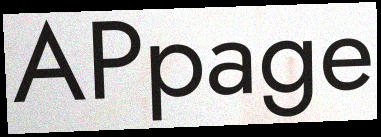
APpage